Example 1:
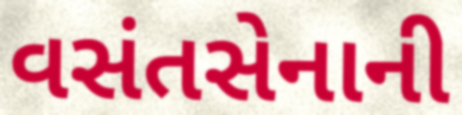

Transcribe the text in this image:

વસંતસેનાની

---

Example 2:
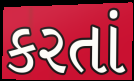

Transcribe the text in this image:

કરતાં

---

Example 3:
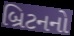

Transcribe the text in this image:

બ્રિટનનો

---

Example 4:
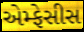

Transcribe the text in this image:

એમ્ફેસીસ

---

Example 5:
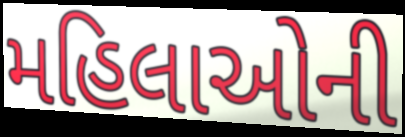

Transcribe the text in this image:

મહિલાઓની